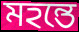
মহন্তে